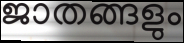
ജാതങ്ങളും